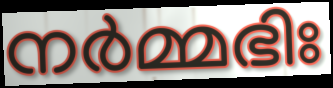
നർമ്മഭിഃ